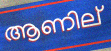
ആണില്